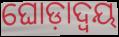
ଘୋଡ଼ାଦ୍ୱୟ